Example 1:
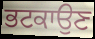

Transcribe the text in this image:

ਭਟਕਾਉਣ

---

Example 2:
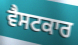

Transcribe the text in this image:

ਵੈਸਟਕਾਰ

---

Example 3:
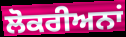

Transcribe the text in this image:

ਲੋਕਰੀਅਨਾਂ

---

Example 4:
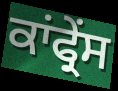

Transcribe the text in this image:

ਕਾਂਫ੍ਰੇਂਸ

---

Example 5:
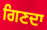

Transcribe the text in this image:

ਗਿਣਦਾ